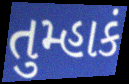
તુમ્હાકં